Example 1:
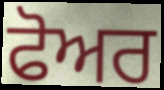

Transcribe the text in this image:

ਫੋਅਰ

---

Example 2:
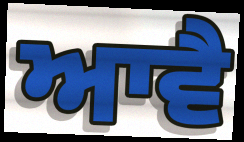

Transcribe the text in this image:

ਆਵੈ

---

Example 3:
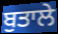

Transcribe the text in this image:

ਬੁਤਾਲੇ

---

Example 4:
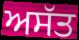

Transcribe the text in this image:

ਅਸੱਤ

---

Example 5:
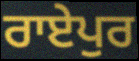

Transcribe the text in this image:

ਰਾਏਪੁਰ